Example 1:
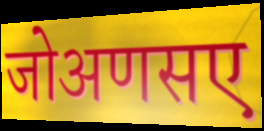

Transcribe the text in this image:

जोअणसए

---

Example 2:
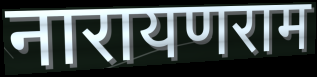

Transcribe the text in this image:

नारायणराम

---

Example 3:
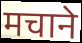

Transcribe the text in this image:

मचाने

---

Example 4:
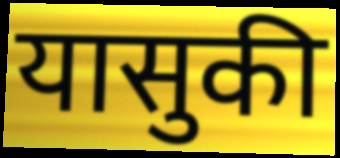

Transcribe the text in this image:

यासुकी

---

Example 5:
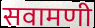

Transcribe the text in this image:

सवामणी